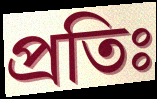
প্রতিঃ